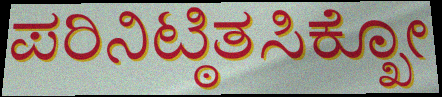
ಪರಿನಿಟ್ಠಿತಸಿಕ್ಖೋ